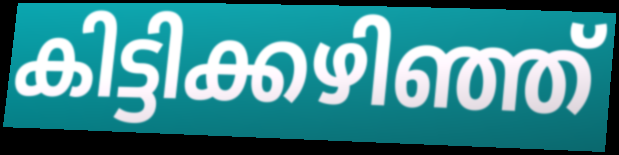
കിട്ടിക്കഴിഞ്ഞ്